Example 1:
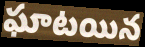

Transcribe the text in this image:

ఘాటయిన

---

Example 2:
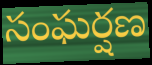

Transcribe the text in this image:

సంఘర్షణ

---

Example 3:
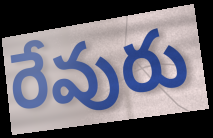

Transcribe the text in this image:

రేవురు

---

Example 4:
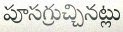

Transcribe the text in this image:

పూసగ్రుచ్చినట్లు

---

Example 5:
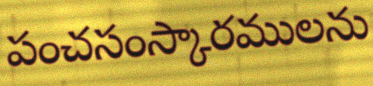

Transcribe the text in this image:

పంచసంస్కారములను